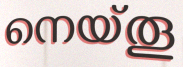
നെയ്തൂ